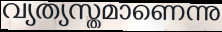
വ്യത്യസ്തമാണെന്നു